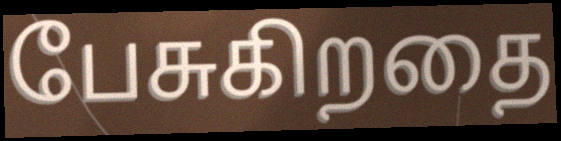
பேசுகிறதை